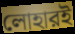
লোহারই